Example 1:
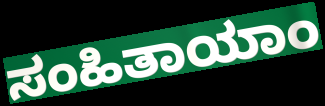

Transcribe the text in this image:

ಸಂಹಿತಾಯಾಂ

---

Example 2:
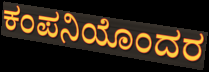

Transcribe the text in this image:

ಕಂಪನಿಯೊಂದರ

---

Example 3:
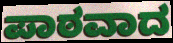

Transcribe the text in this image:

ಪಾಠವಾದ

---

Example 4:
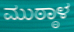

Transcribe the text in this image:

ಮುಠ್ಠಾಳ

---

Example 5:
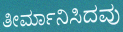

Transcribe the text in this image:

ತೀರ್ಮಾನಿಸಿದವು